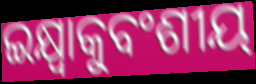
ଇକ୍ଷ୍ୱାକୁବଂଶୀୟ